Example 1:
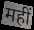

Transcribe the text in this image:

महीं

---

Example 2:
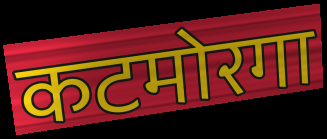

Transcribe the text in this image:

कटमोरगा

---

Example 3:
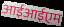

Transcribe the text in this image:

आईआईएम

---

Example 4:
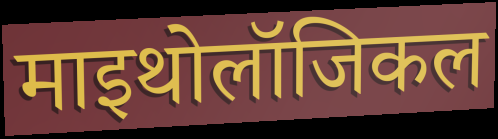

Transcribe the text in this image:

माइथोलॉजिकल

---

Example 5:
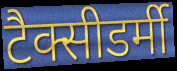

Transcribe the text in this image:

टैक्सीडर्मी